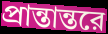
প্রান্তান্তরে